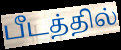
பீடத்தில்